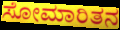
ಸೋಮಾರಿತನ